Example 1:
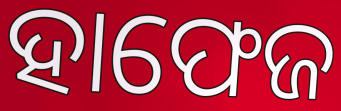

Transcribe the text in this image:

ହାଫେଜ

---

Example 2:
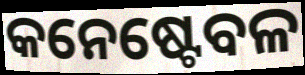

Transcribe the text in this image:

କନେଷ୍ଟେବଳ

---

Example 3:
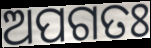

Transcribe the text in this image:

ଅପଗତଃ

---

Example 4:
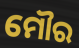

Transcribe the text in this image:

ମୌର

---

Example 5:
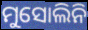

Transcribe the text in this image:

ମୁସୋଲିନି